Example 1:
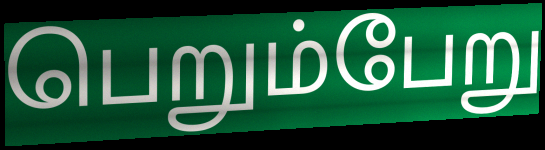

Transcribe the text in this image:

பெறும்பேறு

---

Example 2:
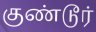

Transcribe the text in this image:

குண்டூர்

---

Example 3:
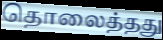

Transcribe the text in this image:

தொலைத்தது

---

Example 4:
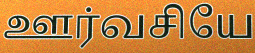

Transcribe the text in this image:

ஊர்வசியே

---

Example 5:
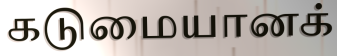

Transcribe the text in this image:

கடுமையானக்